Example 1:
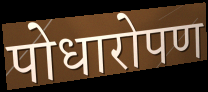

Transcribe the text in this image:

पोधारोपण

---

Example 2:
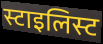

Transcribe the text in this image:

स्टाइलिस्ट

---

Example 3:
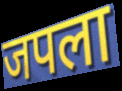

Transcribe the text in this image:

जपला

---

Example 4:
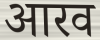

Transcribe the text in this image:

आरव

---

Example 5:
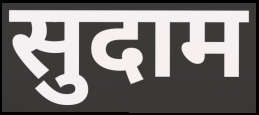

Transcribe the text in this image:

सुदाम